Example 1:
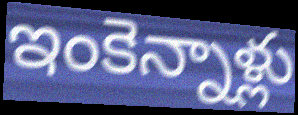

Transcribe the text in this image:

ఇంకెన్నాళ్లు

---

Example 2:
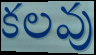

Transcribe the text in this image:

కలవు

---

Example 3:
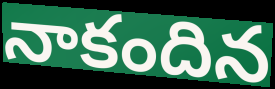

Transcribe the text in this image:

నాకందిన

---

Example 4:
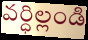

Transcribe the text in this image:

వర్ధిల్లండి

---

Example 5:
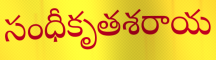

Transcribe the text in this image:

సంధీకృతశరాయ